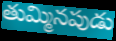
తుమ్మినపుడు